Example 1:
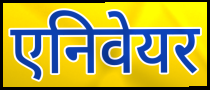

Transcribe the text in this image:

एनिवेयर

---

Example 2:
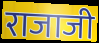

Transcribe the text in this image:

राजाजी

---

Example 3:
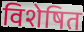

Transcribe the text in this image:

विशेषित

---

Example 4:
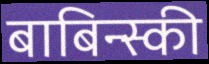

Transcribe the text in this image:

बाबिन्स्की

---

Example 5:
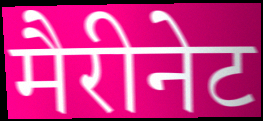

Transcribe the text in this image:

मैरीनेट